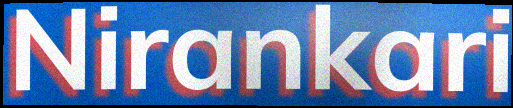
Nirankari